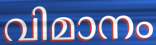
വിമാനം